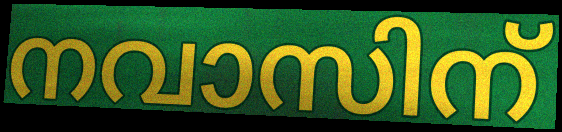
നവാസിന്